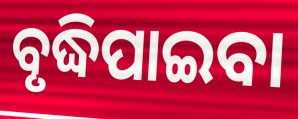
ବୃଦ୍ଧିପାଇବା